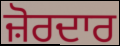
ਜ਼ੋਰਦਾਰ